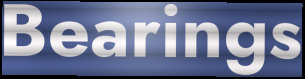
Bearings